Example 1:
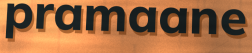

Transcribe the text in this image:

pramaane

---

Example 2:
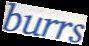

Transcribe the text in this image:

burrs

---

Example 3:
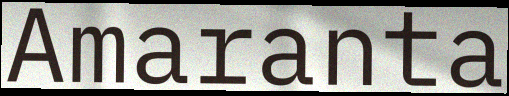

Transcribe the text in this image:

Amaranta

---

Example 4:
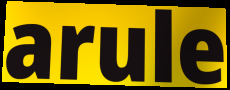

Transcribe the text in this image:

arule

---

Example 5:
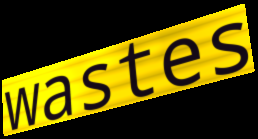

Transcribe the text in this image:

wastes